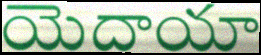
యెదాయా